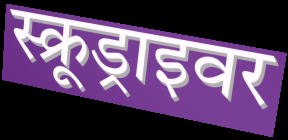
स्क्रूड्राइवर